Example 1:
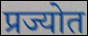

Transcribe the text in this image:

प्रज्योत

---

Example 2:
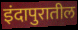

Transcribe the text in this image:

इंदापुरातील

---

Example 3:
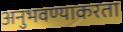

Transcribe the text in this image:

अनुभवण्याकरता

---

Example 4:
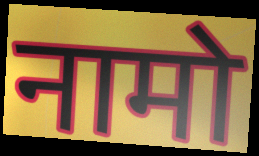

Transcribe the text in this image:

नामो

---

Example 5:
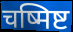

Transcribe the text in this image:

चष्मिष्ट